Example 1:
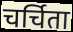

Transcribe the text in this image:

चर्चिता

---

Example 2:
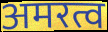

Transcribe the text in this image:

अमरत्व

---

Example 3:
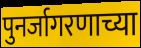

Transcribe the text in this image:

पुनर्जागरणाच्या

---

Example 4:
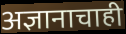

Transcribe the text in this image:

अज्ञानाचाही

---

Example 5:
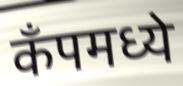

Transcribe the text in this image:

कॅंपमध्ये